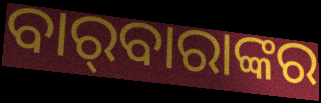
ବାର୍‌ବାରାଙ୍କର